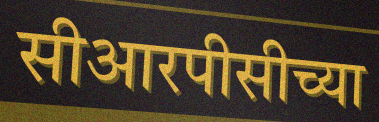
सीआरपीसीच्या